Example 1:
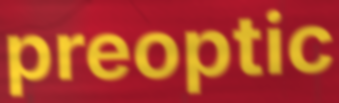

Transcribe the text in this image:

preoptic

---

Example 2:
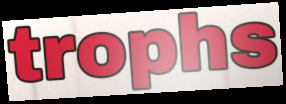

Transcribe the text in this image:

trophs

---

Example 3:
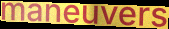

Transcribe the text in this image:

maneuvers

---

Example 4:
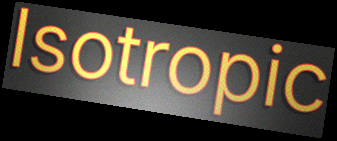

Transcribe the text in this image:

Isotropic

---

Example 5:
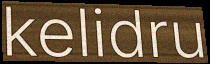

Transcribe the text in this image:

kelidru